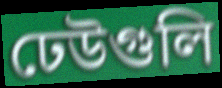
ঢেউগুলি